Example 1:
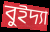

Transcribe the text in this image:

বুইদ্যা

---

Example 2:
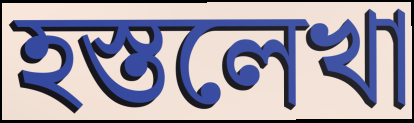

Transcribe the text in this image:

হস্তলেখা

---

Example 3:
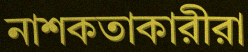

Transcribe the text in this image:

নাশকতাকারীরা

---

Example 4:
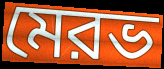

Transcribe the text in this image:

মেরভ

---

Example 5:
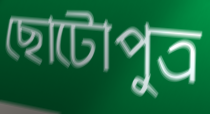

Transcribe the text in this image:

ছোটোপুত্র